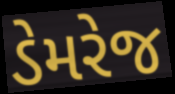
ડેમરેજ